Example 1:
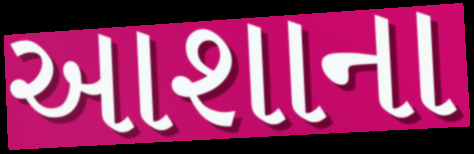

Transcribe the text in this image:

આશાના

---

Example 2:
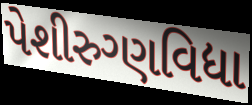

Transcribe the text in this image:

પેશીરુગ્ણવિદ્યા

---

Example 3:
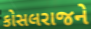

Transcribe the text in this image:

કોસલરાજને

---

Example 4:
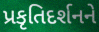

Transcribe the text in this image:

પ્રકૃતિદર્શનને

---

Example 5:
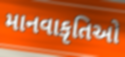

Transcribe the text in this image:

માનવાકૃતિઓ